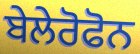
ਬੇਲੇਰੋਫੋਨ